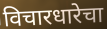
विचारधारेचा